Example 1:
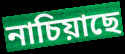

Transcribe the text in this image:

নাচিয়াছে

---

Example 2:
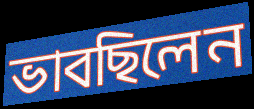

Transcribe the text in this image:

ভাবছিলেন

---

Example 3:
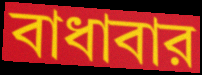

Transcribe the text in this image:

বাধাবার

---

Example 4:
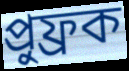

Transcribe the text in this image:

প্রুফ্রক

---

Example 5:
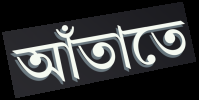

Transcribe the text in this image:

আঁতাতে